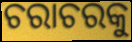
ଚରାଚରକୁ